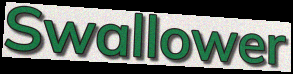
Swallower